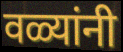
वळ्यांनी